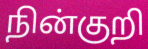
நின்குறி